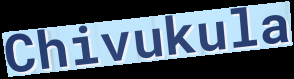
Chivukula